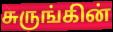
சுருங்கின்